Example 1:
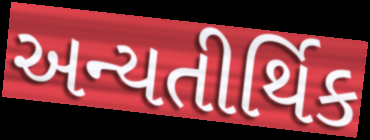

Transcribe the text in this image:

અન્યતીર્થિક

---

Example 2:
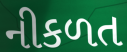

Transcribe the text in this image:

નીકળત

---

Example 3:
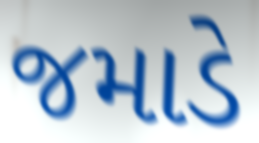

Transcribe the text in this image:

જમાડે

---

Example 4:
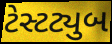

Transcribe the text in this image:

ટેસ્ટટ્યુબ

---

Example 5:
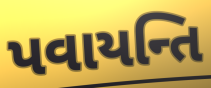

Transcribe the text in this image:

પવાયન્તિ